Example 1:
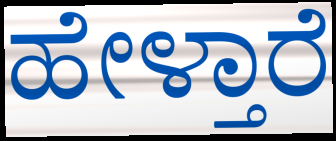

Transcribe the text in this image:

ಹೇಳ್ತಾರೆ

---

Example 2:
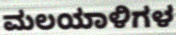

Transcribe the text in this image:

ಮಲಯಾಳಿಗಳ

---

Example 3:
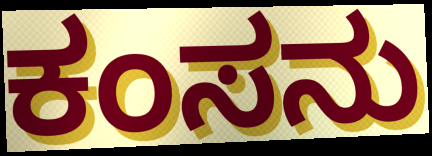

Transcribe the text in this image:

ಕಂಸನು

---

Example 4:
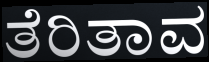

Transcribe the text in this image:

ತೆರಿತಾವ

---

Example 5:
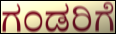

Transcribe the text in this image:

ಗಂಡರಿಗೆ